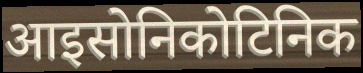
आइसोनिकोटिनिक